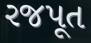
રજપૂત